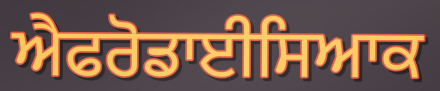
ਐਫਰੋਡਾਈਸਿਆਕ